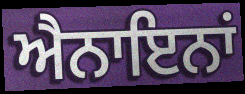
ਐਨਾਇਨਾਂ